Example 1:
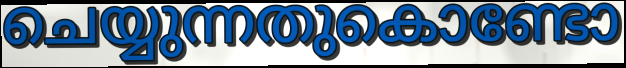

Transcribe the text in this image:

ചെയ്യുന്നതുകൊണ്ടോ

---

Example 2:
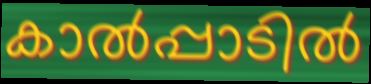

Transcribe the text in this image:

കാൽപ്പാടിൽ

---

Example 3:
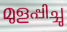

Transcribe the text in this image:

മുളപ്പിച്ചു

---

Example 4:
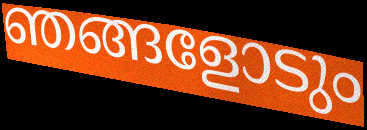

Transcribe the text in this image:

ഞങ്ങളോടും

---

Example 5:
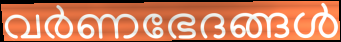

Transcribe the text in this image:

വർണഭേദങ്ങൾ